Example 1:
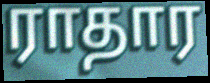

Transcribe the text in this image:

ராதார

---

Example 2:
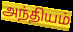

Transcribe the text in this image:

அந்தியம்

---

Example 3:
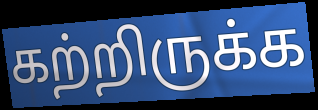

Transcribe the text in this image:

கற்றிருக்க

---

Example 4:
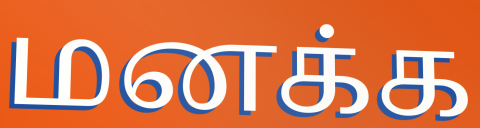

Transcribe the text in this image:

மனக்க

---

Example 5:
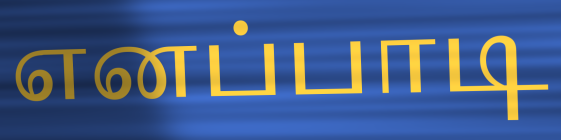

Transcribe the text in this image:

எனப்பாடி